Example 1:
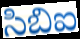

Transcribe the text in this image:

సిబిఐ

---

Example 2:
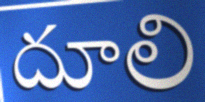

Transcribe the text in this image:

దూలి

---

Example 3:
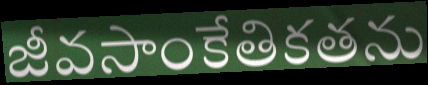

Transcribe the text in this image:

జీవసాంకేతికతను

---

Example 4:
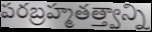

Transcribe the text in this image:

పరబ్రహ్మతత్త్వాన్ని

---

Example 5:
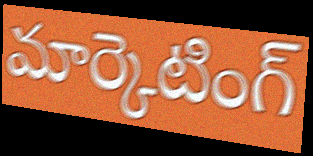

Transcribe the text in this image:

మార్కెటింగ్